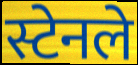
स्टेनले